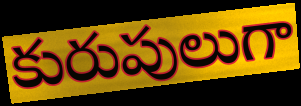
కురుపులుగా